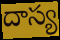
దాస్య